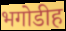
भगोडीह